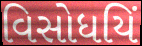
વિસોધયિં